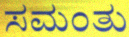
ಸಮಂತು